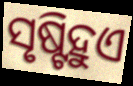
ସୃଷ୍ଟିହୁଏ